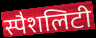
स्पैशलिटी